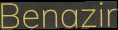
Benazir